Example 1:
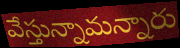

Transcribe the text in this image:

వేస్తున్నామన్నారు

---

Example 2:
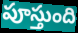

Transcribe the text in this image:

పూస్తుంది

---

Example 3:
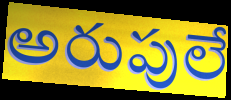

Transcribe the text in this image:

అరుపులే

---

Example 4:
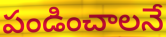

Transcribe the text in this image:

పండించాలనే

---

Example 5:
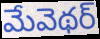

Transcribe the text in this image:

మేవెథర్